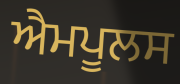
ਐਮਪੂਲਸ